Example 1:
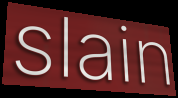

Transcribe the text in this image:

slain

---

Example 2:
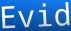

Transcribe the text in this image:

Evid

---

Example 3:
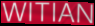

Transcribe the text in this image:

WITIAN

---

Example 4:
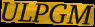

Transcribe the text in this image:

ULPGM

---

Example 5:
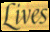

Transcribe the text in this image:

Lives